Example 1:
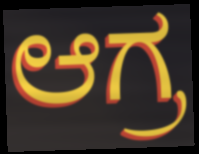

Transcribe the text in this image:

ಆಗ್ರ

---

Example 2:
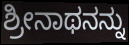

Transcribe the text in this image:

ಶ್ರೀನಾಥನನ್ನು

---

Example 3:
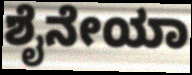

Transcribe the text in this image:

ಶೈನೇಯಾ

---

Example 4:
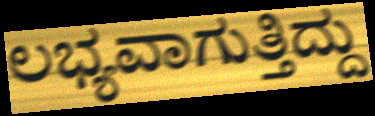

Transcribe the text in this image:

ಲಭ್ಯವಾಗುತ್ತಿದ್ದು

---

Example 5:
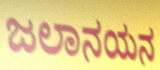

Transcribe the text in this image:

ಜಲಾನಯನ